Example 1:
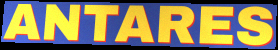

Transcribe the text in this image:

ANTARES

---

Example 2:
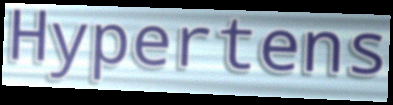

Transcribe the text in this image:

Hypertens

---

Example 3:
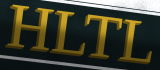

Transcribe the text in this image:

HLTL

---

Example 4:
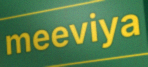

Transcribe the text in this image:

meeviya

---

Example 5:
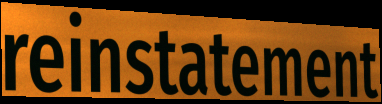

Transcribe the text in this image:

reinstatement